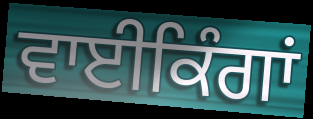
ਵਾਈਕਿੰਗਾਂ